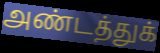
அண்டத்துக்